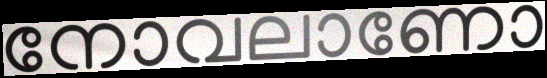
നോവലാണോ